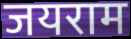
जयराम